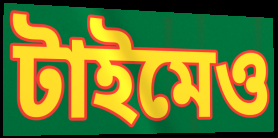
টাইমেও